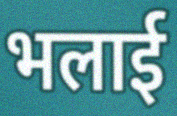
भलाई